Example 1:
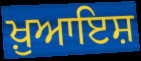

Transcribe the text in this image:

ਖ਼ੁਆਇਸ਼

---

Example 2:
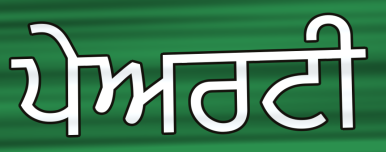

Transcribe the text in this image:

ਪੇਅਰਟੀ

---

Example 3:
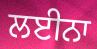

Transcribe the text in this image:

ਲਈਨਾ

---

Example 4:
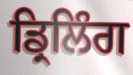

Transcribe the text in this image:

ਡ੍ਰਿਲਿੰਗ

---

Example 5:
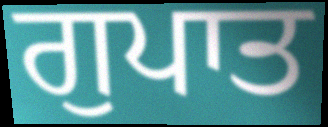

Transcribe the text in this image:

ਗੁਪਾਤ